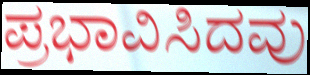
ಪ್ರಭಾವಿಸಿದವು